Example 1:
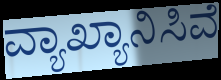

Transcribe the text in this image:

ವ್ಯಾಖ್ಯಾನಿಸಿವೆ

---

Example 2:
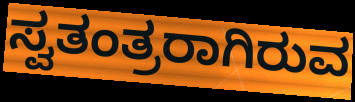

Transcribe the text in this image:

ಸ್ವತಂತ್ರರಾಗಿರುವ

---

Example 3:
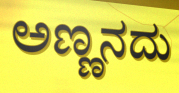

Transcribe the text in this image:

ಅಣ್ಣನದು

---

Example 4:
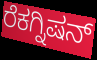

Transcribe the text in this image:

ರೆಕಗ್ನಿಷನ್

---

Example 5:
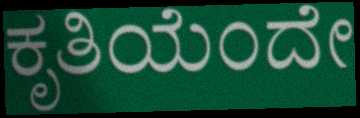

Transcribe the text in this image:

ಕೃತಿಯೆಂದೇ